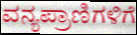
ವನ್ಯಪ್ರಾಣಿಗಳಿಗೆ